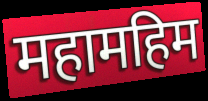
महामहिम